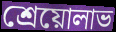
শ্রেয়োলাভ